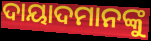
ଦାୟାଦମାନଙ୍କୁ